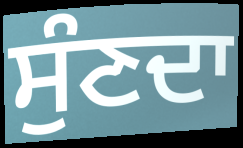
ਸੁੰਣਦਾ